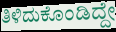
ತಿಳಿದುಕೊಂಡಿದ್ದೇ